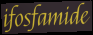
ifosfamide